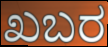
ಖಬರ